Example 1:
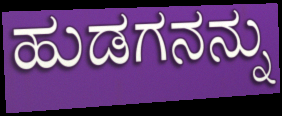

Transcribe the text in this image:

ಹುಡಗನನ್ನು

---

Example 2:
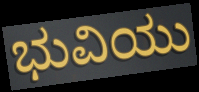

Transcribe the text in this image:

ಭುವಿಯು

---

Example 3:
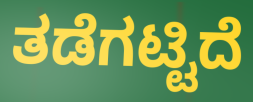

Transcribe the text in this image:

ತಡೆಗಟ್ಟಿದೆ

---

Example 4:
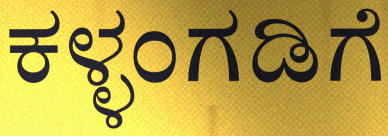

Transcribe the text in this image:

ಕಳ್ಳಂಗಡಿಗೆ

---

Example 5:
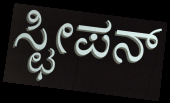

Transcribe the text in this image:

ಸ್ಟೀಪನ್